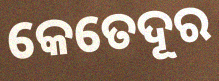
କେତେଦୂର